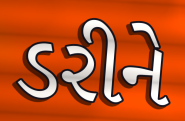
ડરીને